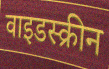
वाइडस्क्रीन